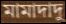
মামাদাদু